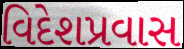
વિદેશપ્રવાસ